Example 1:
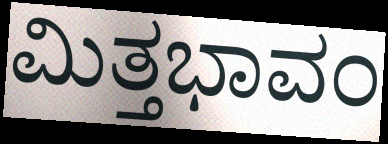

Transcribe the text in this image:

ಮಿತ್ತಭಾವಂ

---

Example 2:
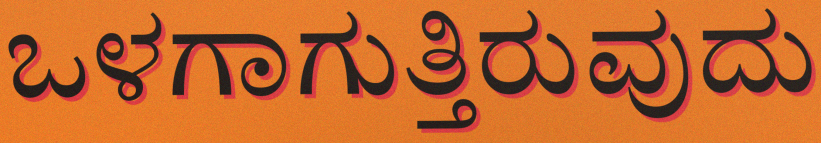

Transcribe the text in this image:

ಒಳಗಾಗುತ್ತಿರುವುದು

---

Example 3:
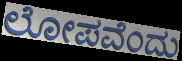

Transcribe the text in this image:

ಲೋಪವೆಂದು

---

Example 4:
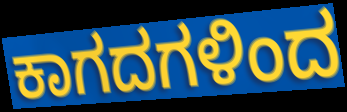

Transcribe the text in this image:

ಕಾಗದಗಳಿಂದ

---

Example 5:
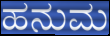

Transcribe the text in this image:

ಹನುಮ